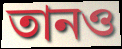
তানও